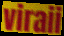
viraii